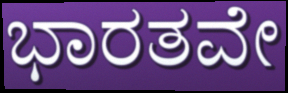
ಭಾರತವೇ